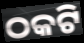
ଠକଟି